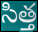
సిత్త